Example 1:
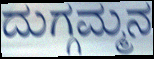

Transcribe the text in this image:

ದುಗ್ಗಮ್ಮನ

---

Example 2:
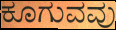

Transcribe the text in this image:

ಕೂಗುವವು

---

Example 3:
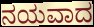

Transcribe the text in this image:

ನಯವಾದ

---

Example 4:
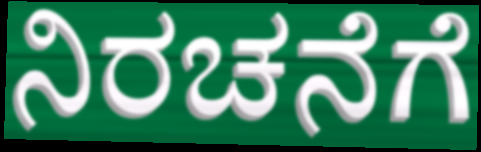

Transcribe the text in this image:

ನಿರಚನೆಗೆ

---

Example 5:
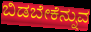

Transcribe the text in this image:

ಬಿಡಬೇಕೆನ್ನುವ